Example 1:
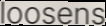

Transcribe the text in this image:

loosens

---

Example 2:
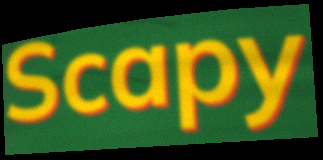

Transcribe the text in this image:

Scapy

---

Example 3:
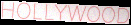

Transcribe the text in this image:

HOLLYWOOD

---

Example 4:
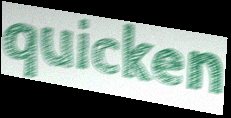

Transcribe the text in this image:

quicken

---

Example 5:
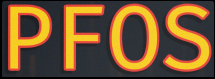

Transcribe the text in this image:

PFOS